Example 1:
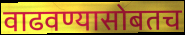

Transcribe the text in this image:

वाढवण्यासोबतच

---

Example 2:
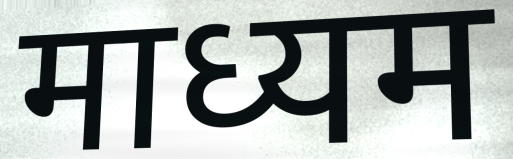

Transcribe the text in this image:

माध्यम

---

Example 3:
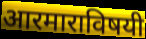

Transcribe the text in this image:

आरमाराविषयी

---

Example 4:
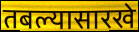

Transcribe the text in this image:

तबल्यासारखे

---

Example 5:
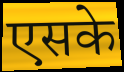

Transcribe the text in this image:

एसके